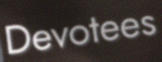
Devotees